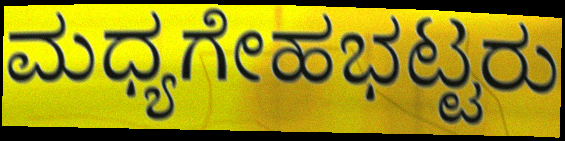
ಮಧ್ಯಗೇಹಭಟ್ಟರು